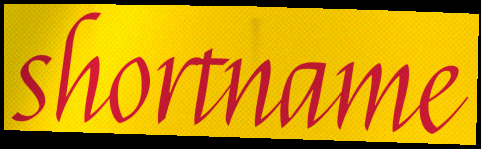
shortname